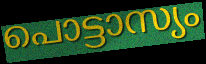
പൊട്ടാസ്യം